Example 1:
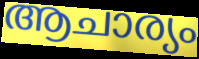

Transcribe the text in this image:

ആചാര്യം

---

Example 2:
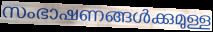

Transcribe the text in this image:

സംഭാഷണങ്ങൾക്കുമുള്ള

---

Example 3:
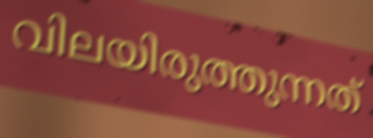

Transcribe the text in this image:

വിലയിരുത്തുന്നത്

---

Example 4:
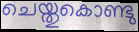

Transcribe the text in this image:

ചെയ്തുകൊണ്ടു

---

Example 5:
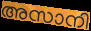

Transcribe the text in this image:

അസാനി